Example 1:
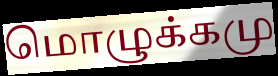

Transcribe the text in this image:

மொழுக்கமு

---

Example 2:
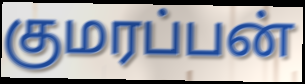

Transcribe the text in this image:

குமரப்பன்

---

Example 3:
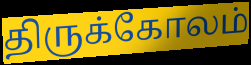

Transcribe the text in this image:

திருக்கோலம்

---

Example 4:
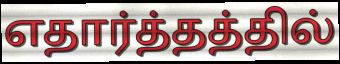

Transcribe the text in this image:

எதார்த்தத்தில்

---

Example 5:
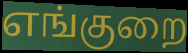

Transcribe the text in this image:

எங்குறை